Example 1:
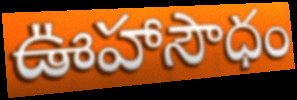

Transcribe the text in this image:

ఊహాసౌధం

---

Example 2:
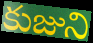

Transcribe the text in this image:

కుజుని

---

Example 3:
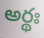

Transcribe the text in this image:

అర్థః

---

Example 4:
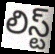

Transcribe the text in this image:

లిస్ట్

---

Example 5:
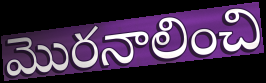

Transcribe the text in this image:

మొరనాలించి